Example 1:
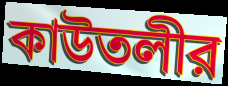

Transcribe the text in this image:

কাউতলীর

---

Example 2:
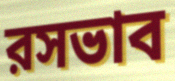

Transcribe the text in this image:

রসভাব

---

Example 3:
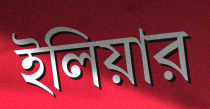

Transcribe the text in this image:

ইলিয়ার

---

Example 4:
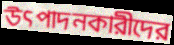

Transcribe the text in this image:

উৎপাদনকারীদের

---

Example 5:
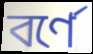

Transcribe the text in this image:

বর্ণে